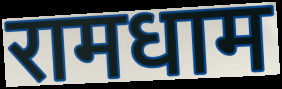
रामधाम